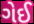
ગેઈ